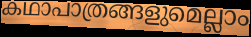
കഥാപാത്രങ്ങളുമെല്ലാം